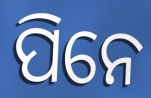
ପିନେ